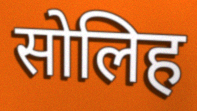
सोलिह